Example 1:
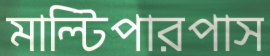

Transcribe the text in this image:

মাল্টিপারপাস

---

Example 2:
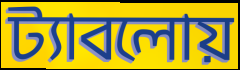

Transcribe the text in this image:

ট্যাবলোয়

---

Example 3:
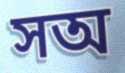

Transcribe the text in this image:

সঅ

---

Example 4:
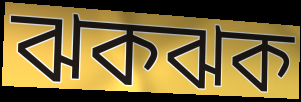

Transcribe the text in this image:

ঝকঝক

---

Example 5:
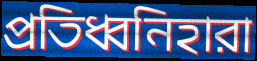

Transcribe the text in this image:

প্রতিধ্বনিহারা